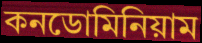
কনডোমিনিয়াম